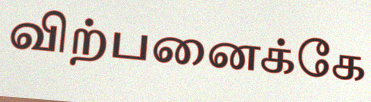
விற்பனைக்கே